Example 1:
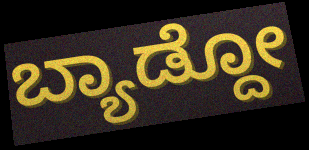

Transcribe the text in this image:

ಬ್ಯಾಡ್ದೋ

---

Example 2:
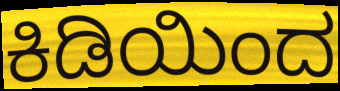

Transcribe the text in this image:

ಕಿಡಿಯಿಂದ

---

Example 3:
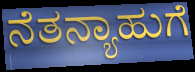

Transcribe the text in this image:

ನೆತನ್ಯಾಹುಗೆ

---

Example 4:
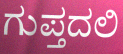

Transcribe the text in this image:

ಗುಪ್ತದಲಿ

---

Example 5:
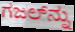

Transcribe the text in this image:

ಗಜಲ್‍ನ್ನು